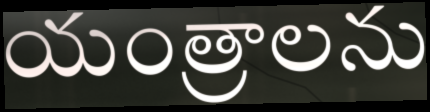
యంత్రాలను